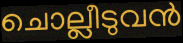
ചൊല്ലീടുവൻ